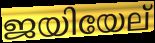
ജയിയേല്